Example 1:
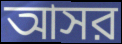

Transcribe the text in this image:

আসর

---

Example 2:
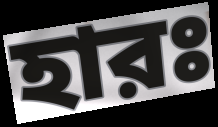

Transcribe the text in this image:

হারঃ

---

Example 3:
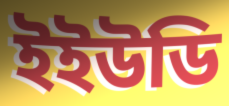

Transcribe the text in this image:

ইইউডি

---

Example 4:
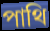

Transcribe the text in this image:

পাথি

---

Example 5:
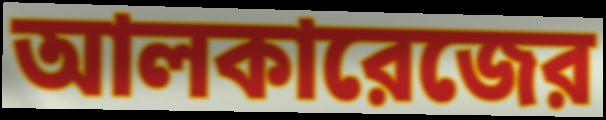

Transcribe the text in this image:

আলকারেজের